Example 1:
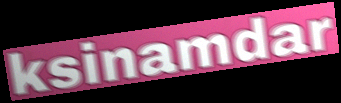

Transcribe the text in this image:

ksinamdar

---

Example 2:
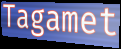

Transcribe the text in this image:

Tagamet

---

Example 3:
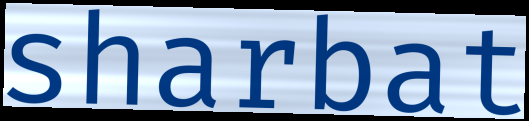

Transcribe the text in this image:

sharbat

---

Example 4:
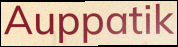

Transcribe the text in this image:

Auppatik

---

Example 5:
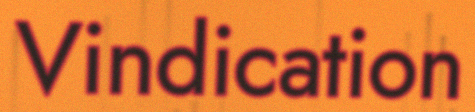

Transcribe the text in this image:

Vindication